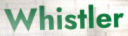
Whistler